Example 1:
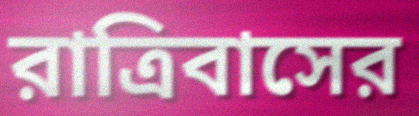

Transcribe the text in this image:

রাত্রিবাসের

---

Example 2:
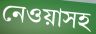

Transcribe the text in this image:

নেওয়াসহ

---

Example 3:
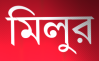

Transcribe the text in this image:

মিলুর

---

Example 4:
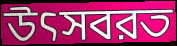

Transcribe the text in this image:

উৎসবরত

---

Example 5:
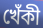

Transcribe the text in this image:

খেঁকী